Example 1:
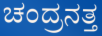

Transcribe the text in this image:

ಚಂದ್ರನತ್ತ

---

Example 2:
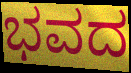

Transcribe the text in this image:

ಭವದ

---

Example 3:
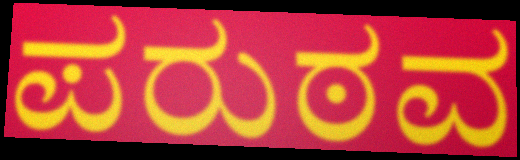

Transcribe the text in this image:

ಪರುಠವ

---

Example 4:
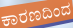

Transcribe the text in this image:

ಕಾರಣದಿಂದ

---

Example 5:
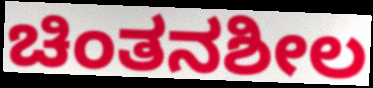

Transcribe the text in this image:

ಚಿಂತನಶೀಲ